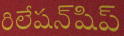
రిలేషన్‌షిప్